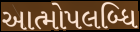
આત્મોપલબ્ધિ